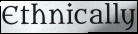
Ethnically